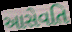
આસેવતિ